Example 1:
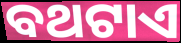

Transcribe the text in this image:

ବଥଟାଏ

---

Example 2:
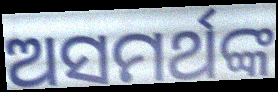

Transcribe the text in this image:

ଅସମର୍ଥଙ୍କ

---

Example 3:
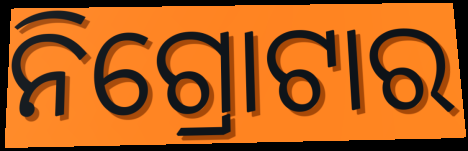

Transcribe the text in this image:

ନିଗ୍ରୋଟାର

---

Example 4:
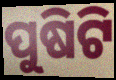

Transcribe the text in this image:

ପୁଷିଟି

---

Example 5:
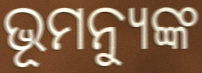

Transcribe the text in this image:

ଭୂମନ୍ୟୁଙ୍କ